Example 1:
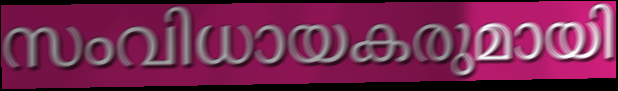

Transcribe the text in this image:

സംവിധായകരുമായി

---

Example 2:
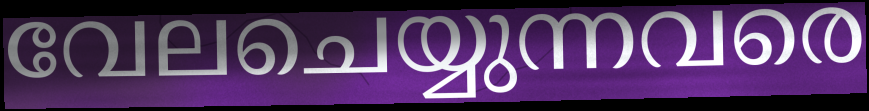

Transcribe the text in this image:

വേലചെയ്യുന്നവരെ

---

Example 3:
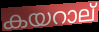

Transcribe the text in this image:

കയറാല്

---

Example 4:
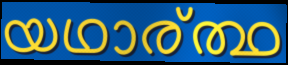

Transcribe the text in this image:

യഥാര്ത്ഥ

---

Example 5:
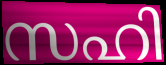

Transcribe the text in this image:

സഹി